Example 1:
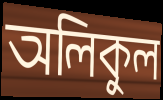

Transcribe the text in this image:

অলিকুল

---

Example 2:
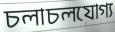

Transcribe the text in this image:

চলাচলযোগ্য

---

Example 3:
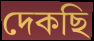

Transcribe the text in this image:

দেকছি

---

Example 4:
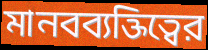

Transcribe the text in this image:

মানবব্যক্তিত্বের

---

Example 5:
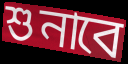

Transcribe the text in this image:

শুনাবে